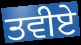
ਤਵੀਏ